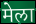
मेला